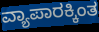
ವ್ಯಾಪಾರಕ್ಕಿಂತ